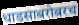
धाडसाबरोबरच